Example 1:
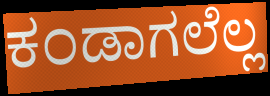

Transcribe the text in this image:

ಕಂಡಾಗಲೆಲ್ಲ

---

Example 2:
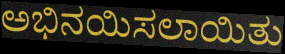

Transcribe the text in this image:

ಅಭಿನಯಿಸಲಾಯಿತು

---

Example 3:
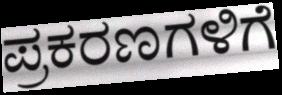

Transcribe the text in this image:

ಪ್ರಕರಣಗಳಿಗೆ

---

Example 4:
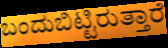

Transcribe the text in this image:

ಬಂದುಬಿಟ್ಟಿರುತ್ತಾರೆ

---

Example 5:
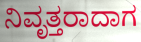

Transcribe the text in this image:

ನಿವೃತ್ತರಾದಾಗ